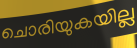
ചൊരിയുകയില്ല